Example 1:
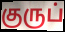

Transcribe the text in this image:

குருப்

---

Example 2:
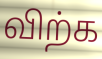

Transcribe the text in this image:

விற்க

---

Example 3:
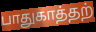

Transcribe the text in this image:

பாதுகாத்தற்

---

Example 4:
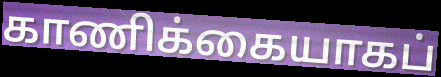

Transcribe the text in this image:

காணிக்கையாகப்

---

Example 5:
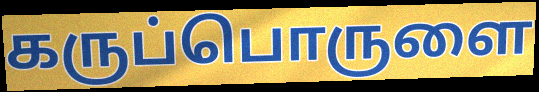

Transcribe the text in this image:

கருப்பொருளை